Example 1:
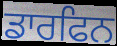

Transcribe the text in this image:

ਡਾਰਫਿਨ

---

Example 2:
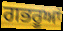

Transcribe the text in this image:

ਗਭਰੂਆਂ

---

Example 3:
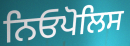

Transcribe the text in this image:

ਨਿਓਪੋਲਿਸ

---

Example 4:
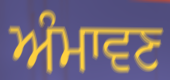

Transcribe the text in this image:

ਅੰਮਾਵਣ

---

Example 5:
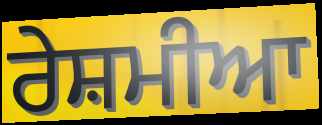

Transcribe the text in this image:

ਰੇਸ਼ਮੀਆ